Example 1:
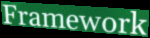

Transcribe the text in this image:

Framework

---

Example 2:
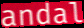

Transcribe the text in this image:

andal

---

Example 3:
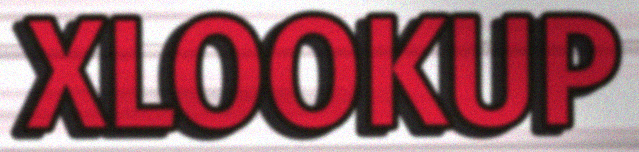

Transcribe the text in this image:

XLOOKUP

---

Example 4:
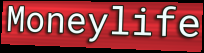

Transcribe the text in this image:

Moneylife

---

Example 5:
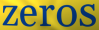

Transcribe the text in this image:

zeros